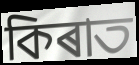
কিৰাত